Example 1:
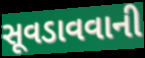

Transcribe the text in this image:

સૂવડાવવાની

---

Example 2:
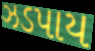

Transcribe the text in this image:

ઝડપાય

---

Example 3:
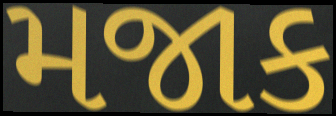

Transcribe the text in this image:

મજાક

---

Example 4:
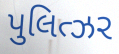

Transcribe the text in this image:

પુલિત્ઝર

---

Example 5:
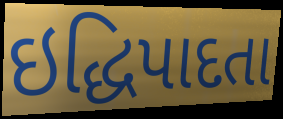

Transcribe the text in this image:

ઇદ્ધિપાદતા